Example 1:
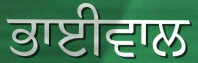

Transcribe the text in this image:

ਭਾਈਵਾਲ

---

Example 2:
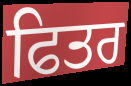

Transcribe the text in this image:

ਫਿਤਰ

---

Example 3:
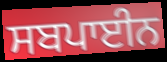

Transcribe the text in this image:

ਸਬਪਾਈਨ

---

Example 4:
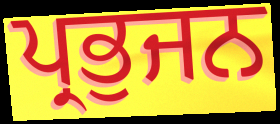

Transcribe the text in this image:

ਪ੍ਰਭੁਜਨ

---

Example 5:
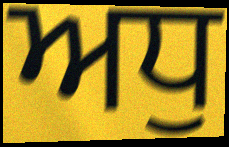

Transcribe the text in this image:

ਅਧੁ